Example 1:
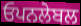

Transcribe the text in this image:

ਓਪਨਲੇਬਲ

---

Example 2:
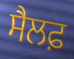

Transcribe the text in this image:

ਸੈਲਫ਼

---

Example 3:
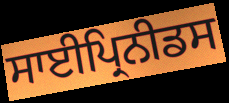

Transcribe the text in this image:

ਸਾਈਪ੍ਰਿਨੀਡਸ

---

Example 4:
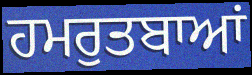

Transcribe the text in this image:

ਹਮਰੁਤਬਾਆਂ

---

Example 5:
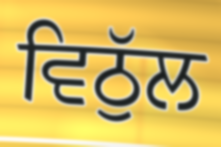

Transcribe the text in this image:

ਵਿਠੁੱਲ